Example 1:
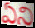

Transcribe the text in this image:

ఏని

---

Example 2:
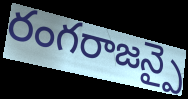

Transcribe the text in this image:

రంగరాజన్పై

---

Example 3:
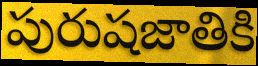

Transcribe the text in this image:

పురుషజాతికి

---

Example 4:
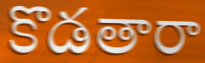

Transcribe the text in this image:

కొడతారా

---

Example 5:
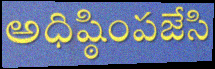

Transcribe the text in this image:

అధిష్ఠింపజేసి